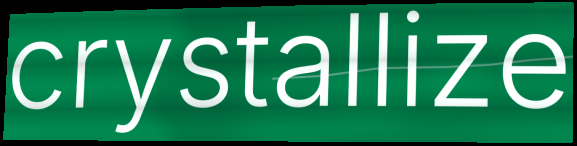
crystallize